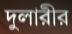
দুলারীর